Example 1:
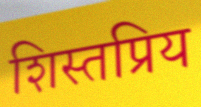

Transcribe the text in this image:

शिस्तप्रिय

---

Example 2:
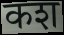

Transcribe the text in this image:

कश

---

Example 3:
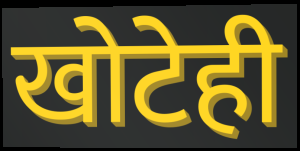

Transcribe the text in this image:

खोटेही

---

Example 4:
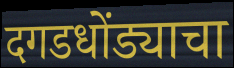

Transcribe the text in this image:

दगडधोंड्याचा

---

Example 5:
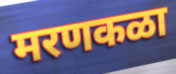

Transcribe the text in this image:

मरणकळा